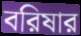
বরিষার